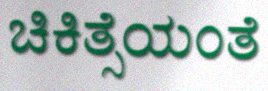
ಚಿಕಿತ್ಸೆಯಂತೆ